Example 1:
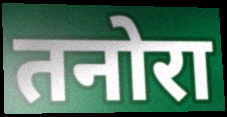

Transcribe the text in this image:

तनोरा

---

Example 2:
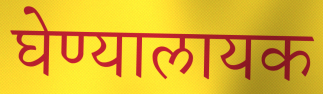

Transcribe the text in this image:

घेण्यालायक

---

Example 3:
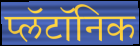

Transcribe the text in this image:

प्लॅटॉनिक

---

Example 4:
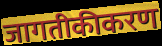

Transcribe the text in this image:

जागतीकीकरण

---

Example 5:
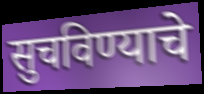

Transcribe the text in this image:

सुचविण्याचे